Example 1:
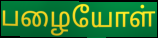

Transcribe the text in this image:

பழையோள்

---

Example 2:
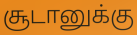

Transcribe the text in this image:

சூடானுக்கு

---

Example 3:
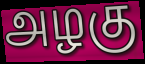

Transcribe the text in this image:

அழகு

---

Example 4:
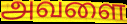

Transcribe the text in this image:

அவளை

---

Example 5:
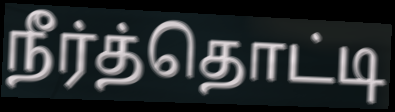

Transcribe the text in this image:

நீர்த்தொட்டி